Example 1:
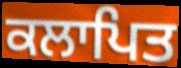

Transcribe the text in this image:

ਕਲਾਪਿਤ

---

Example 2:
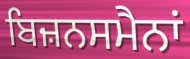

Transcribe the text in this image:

ਬਿਜ਼ਨਸਮੈਨਾਂ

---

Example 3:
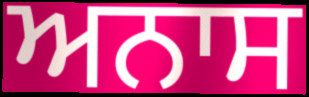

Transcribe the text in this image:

ਅਨਾਸ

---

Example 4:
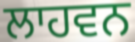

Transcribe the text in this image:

ਲਾਹਵਨ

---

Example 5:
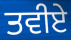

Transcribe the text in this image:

ਤਵੀਏ